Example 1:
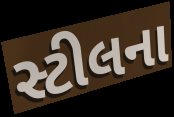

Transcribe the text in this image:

સ્ટીલના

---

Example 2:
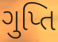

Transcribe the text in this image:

ગુપ્તિ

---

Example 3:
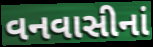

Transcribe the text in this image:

વનવાસીનાં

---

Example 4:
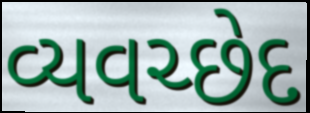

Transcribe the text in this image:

વ્યવચ્છેદ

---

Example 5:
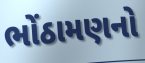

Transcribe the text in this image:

ભોંઠામણનો